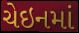
ચેઇનમાં